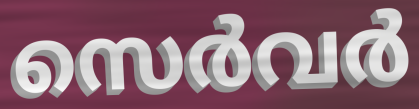
സെർവർ